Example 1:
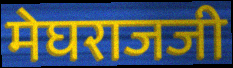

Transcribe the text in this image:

मेघराजजी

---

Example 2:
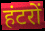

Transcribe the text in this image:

हंटरों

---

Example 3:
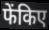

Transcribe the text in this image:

फेंकिए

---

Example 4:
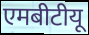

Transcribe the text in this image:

एमबीटीयू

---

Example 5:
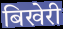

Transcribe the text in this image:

बिखेरी